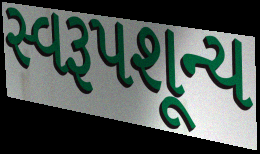
સ્વરૂપશૂન્ય